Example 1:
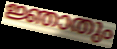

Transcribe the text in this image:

ജ്ഞാതും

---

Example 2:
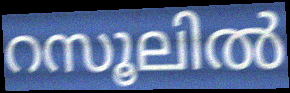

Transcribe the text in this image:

റസൂലിൽ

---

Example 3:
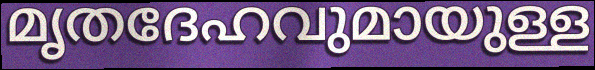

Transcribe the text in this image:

മൃതദേഹവുമായുള്ള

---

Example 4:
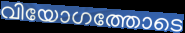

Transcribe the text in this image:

വിയോഗത്തോടെ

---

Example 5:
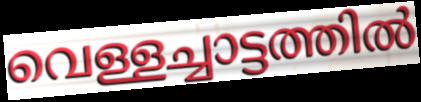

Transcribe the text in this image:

വെള്ളച്ചാട്ടത്തിൽ